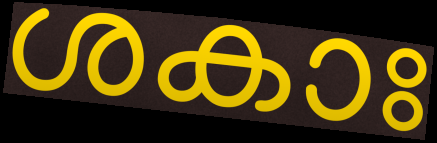
ശകാഃ